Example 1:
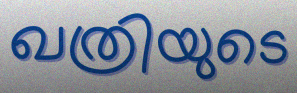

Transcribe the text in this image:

ഖത്രിയുടെ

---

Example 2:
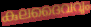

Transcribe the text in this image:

കുലദൈവവും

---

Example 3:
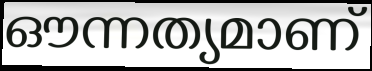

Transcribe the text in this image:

ഔന്നത്യമാണ്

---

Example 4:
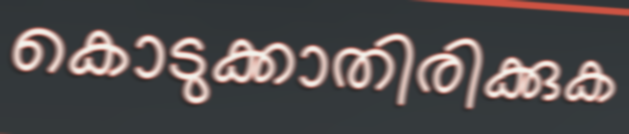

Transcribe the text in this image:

കൊടുക്കാതിരിക്കുക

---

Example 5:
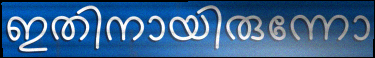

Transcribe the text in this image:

ഇതിനായിരുന്നോ